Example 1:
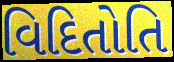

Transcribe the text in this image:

વિદિતોતિ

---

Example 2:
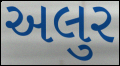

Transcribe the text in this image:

અલુર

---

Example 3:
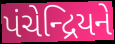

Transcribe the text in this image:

પંચેન્દ્રિયને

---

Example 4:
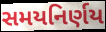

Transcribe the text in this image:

સમયનિર્ણય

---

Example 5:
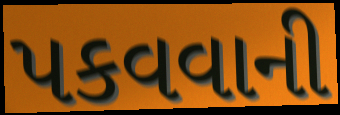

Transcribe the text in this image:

પકવવાની